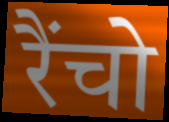
रैंचो